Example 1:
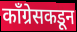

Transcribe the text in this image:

काँग्रेसकडून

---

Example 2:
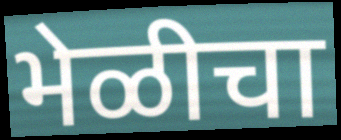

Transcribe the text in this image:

भेळीचा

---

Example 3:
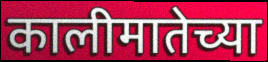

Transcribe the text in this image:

कालीमातेच्या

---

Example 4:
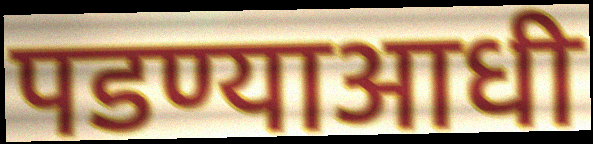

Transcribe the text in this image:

पडण्याआधी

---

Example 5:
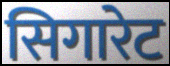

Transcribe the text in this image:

सिगारेट